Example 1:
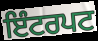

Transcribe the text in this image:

ਇੰਟਰਪਟ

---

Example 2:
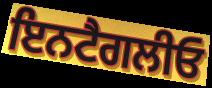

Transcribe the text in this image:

ਇਨਟੈਗਲੀਓ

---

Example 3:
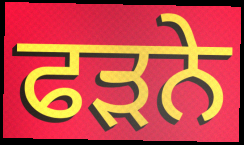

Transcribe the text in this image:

ਫੜਨੇ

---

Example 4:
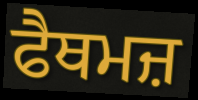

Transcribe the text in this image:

ਫੈਥਮਜ਼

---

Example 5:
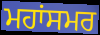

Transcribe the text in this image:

ਮਹਾਂਸਮਰ